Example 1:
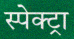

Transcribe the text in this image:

स्पेक्ट्रा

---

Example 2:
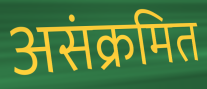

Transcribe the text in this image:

असंक्रमित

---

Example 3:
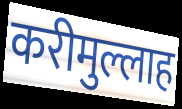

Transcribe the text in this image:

करीमुल्लाह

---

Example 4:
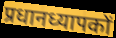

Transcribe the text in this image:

प्रधानध्यापकों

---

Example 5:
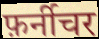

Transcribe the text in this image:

फ़र्नीचर